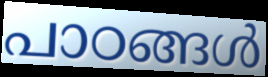
പാഠങ്ങൾ